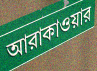
আরাকাওয়ার